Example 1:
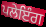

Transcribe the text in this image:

ਪਲੇਇੰਗ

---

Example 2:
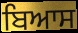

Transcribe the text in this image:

ਬਿਆਸ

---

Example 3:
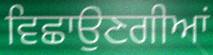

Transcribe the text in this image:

ਵਿਛਾਉਣਗੀਆਂ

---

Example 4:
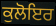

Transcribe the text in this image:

ਕੁਲੋਇਰ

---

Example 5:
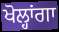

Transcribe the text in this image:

ਖੋਲ੍ਹਾਂਗਾ